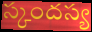
స్కందస్య